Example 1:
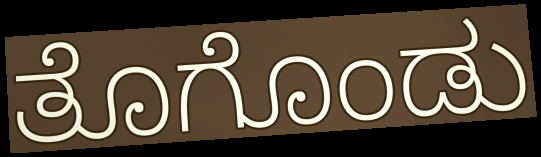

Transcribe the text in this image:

ತೊಗೊಂಡು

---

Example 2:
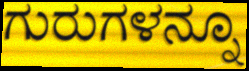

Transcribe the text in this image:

ಗುರುಗಳನ್ನೂ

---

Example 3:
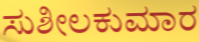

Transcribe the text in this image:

ಸುಶೀಲಕುಮಾರ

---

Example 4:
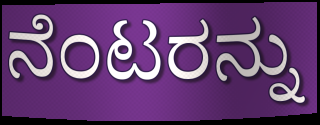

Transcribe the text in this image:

ನೆಂಟರನ್ನು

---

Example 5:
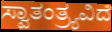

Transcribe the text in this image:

ಸ್ವಾತಂತ್ರ್ಯವಿದೆ